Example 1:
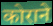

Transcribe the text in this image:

कोराने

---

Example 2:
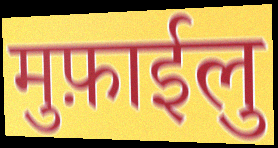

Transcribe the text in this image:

मुफ़ाईलु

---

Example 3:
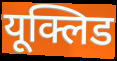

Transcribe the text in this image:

यूक्लिड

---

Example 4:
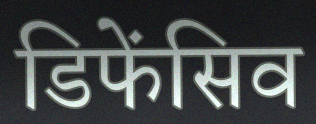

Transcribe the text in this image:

डिफेंसिव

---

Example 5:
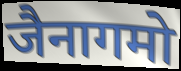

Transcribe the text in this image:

जैनागमो